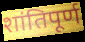
शांतिपूर्ण